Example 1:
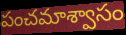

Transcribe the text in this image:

పంచమాశ్వాసం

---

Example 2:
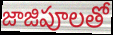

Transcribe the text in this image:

జాజిపూలతో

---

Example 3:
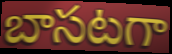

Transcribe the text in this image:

బాసటగా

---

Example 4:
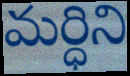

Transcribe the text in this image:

మర్ధిని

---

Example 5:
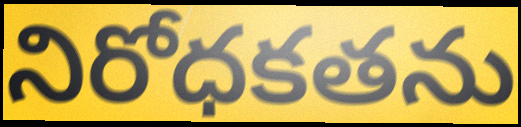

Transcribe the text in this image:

నిరోధకతను